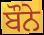
ਬੌਨੇ